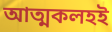
আত্মকলহই